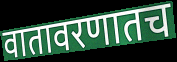
वातावरणातच